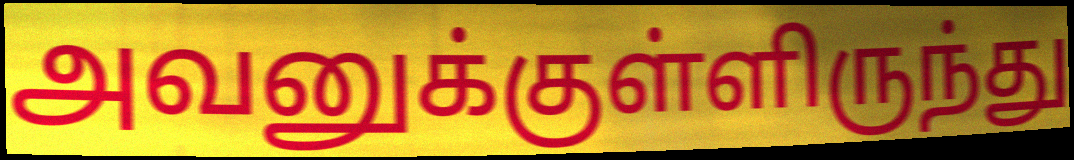
அவனுக்குள்ளிருந்து